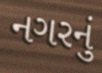
નગરનું